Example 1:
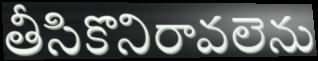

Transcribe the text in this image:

తీసికొనిరావలెను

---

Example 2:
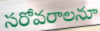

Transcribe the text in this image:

సరోవరాలనూ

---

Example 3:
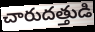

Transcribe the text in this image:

చారుదత్తుడి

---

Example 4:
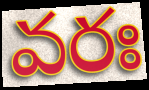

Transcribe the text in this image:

వరః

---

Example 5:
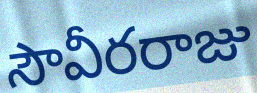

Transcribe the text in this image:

సౌవీరరాజు